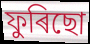
ফুৰিছো